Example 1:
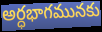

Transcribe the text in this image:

అర్ధభాగమునకు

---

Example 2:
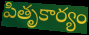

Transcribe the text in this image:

పితృకార్యం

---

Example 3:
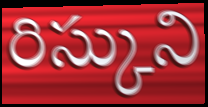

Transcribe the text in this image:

రిస్కుని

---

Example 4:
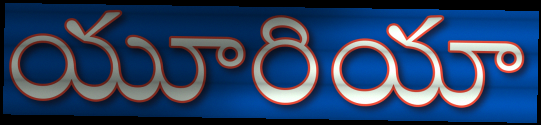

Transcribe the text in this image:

యూరియా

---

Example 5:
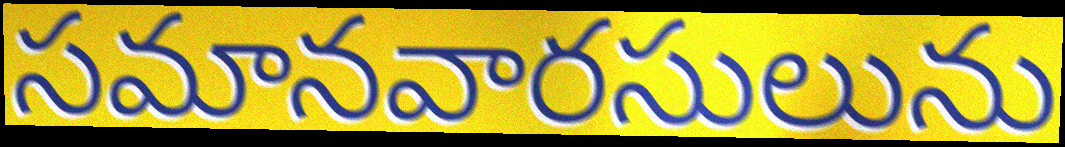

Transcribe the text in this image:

సమానవారసులును